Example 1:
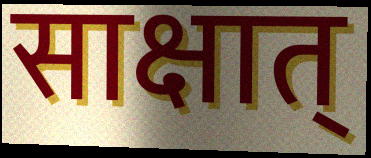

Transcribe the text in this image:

साक्षात्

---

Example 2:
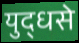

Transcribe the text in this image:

युद्धसे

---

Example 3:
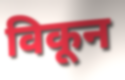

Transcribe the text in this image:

विकून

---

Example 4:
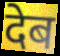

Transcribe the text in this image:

देब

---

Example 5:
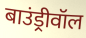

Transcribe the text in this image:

बाउंड्रीवॉल